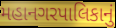
મહાનગરપાલિકાનું